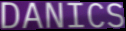
DANICS